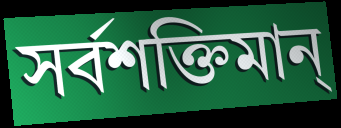
সর্বশক্তিমান্